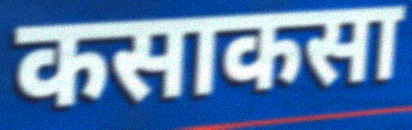
कसाकसा